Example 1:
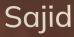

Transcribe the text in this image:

Sajid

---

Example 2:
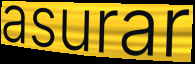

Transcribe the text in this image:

asurar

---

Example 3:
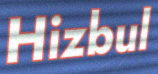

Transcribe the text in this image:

Hizbul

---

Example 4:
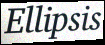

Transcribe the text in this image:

Ellipsis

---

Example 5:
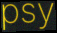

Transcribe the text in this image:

psy